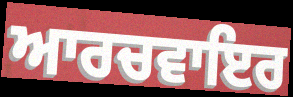
ਆਰਚਵਾਇਰ